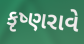
કૃષ્ણરાવે